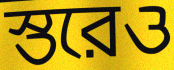
স্তরেও